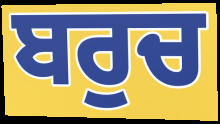
ਬਰੁਚ